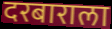
दरबाराला